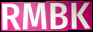
RMBK